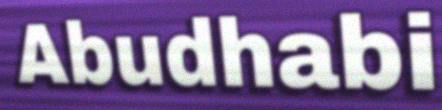
Abudhabi